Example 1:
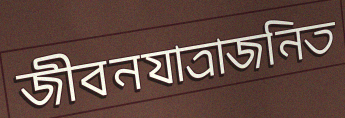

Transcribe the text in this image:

জীবনযাত্রাজনিত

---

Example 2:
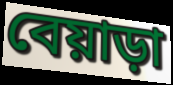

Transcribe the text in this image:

বেয়াড়া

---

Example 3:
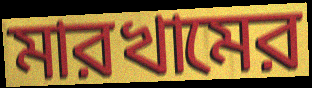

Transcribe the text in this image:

মারখামের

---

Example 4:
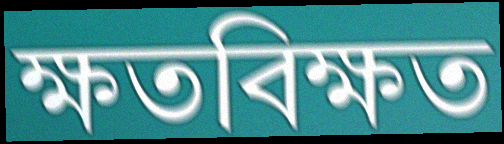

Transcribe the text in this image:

ক্ষতবিক্ষত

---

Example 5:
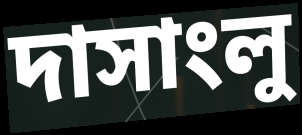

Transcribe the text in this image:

দাসাংলু